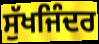
ਸੁੱਖਜਿੰਦਰ